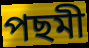
পছমী